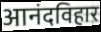
आनंदविहार